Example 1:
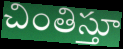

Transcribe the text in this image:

చింతిస్తూ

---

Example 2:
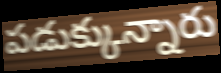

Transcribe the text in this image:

పడుక్కున్నారు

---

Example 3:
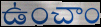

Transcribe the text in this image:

ఉంచాం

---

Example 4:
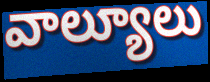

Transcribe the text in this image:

వాల్యూలు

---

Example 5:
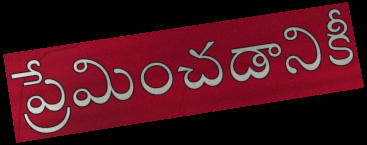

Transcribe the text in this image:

ప్రేమించడానికీ